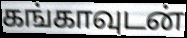
கங்காவுடன்